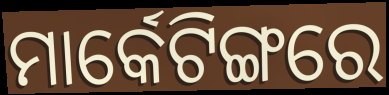
ମାର୍କେଟିଙ୍ଗରେ